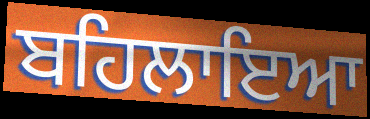
ਬਹਿਲਾਇਆ